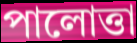
পালোত্তা